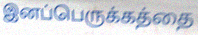
இனப்பெருக்கத்தை